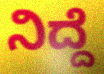
ನಿದ್ದೆ